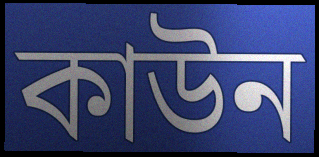
কাউন